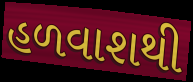
હળવાશથી